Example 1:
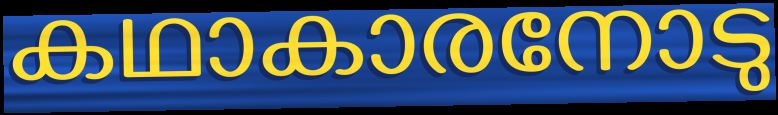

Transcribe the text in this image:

കഥാകാരനോടു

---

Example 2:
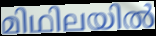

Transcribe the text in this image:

മിഥിലയിൽ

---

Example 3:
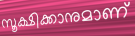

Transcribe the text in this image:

സൂക്ഷിക്കാനുമാണ്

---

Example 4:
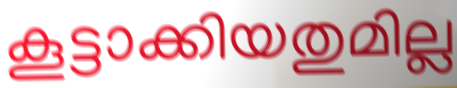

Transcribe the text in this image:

കൂട്ടാക്കിയതുമില്ല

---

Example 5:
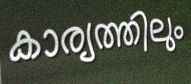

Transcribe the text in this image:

കാര്യത്തിലും